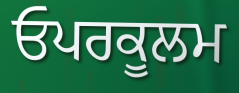
ਓਪਰਕੂਲਮ